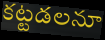
కట్టడలనూ